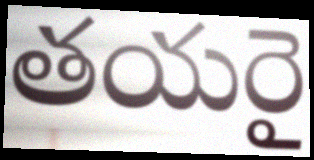
తయరై